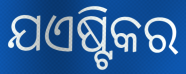
ଯଏଷ୍ଟିକର